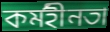
কর্মহীনতা